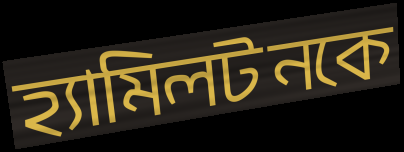
হ্যামিলটনকে